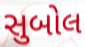
સુબોલ